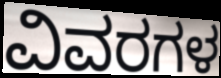
ವಿವರಗಳ